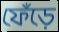
ফেঁড়ে